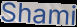
Shami